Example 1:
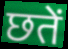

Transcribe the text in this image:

छतें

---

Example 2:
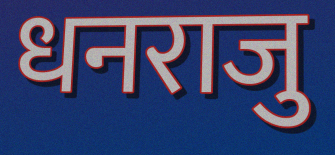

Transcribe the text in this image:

धनराजु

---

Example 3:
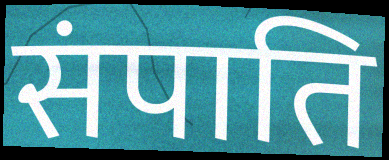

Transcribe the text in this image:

संपाति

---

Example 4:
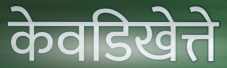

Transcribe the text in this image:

केवडिखेत्ते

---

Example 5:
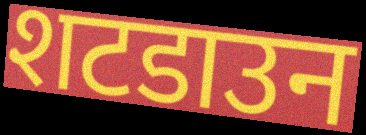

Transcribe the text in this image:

शटडाउन